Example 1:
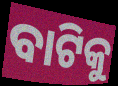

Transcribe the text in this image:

ବାଟିକୁ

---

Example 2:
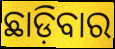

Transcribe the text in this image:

ଛାଡ଼ିବାର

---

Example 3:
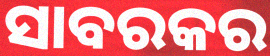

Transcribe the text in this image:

ସାବରକର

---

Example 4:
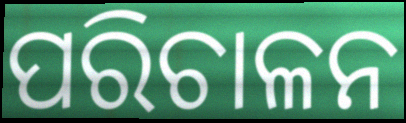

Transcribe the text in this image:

ପରିଚାଳନ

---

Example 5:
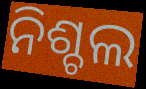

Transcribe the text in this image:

ନିଶ୍ଚଲ